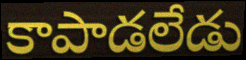
కాపాడలేడు